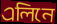
এলিনে